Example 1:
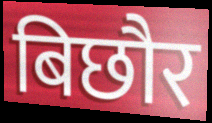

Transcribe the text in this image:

बिछौर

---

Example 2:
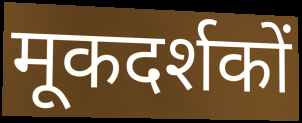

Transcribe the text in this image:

मूकदर्शकों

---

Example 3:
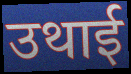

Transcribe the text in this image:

उथाई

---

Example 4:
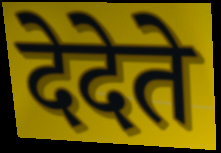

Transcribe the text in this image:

देदेते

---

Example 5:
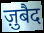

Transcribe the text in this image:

ज़ुबैद